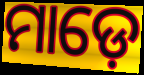
ମାଡ଼େ